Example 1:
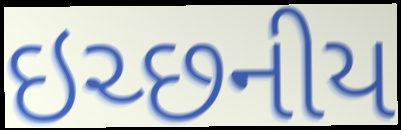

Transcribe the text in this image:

ઇચ્છનીય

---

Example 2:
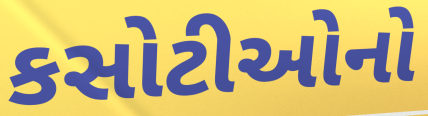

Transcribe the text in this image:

કસોટીઓનો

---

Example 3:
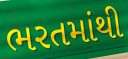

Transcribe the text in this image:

ભરતમાંથી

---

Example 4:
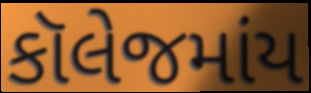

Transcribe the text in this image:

કૉલેજમાંય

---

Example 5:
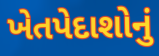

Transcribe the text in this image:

ખેતપેદાશોનું